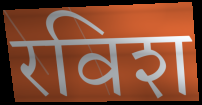
रविश